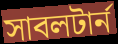
সাবলটার্ন